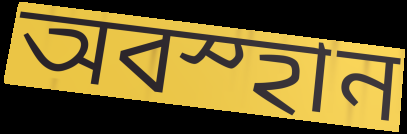
অবস্হান